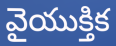
వైయుక్తిక